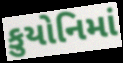
કુયોનિમાં